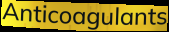
Anticoagulants